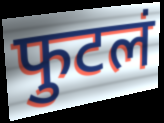
फुटलं